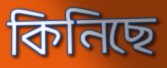
কিনিছে